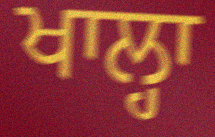
ਖਾਲ੍ਹਾ